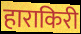
हाराकिरी